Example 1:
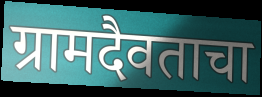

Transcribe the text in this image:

ग्रामदैवताचा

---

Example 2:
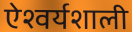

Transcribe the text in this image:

ऐश्वर्यशाली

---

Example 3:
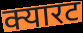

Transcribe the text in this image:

क्यारट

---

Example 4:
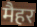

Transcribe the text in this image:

मैहर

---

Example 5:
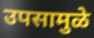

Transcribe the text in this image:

उपसामुळे